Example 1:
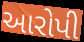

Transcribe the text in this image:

આરોપી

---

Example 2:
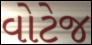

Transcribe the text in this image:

વોટેજ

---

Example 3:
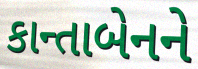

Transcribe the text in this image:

કાન્તાબેનને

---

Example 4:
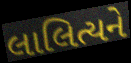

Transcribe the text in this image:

લાલિત્યને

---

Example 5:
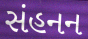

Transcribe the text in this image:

સંહનન